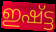
ഇഷ്ട്ട